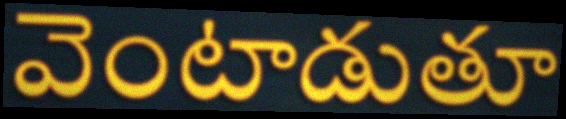
వెంటాడుతూ